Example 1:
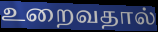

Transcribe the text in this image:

உறைவதால்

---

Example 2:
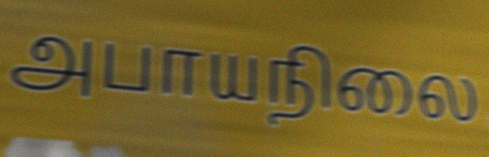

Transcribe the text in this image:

அபாயநிலை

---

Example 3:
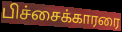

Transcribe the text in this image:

பிச்சைக்காரரை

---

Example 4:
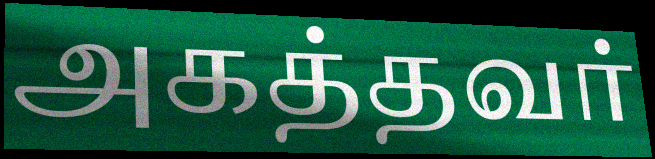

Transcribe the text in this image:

அகத்தவர்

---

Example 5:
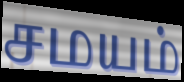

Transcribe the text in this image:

சமயம்